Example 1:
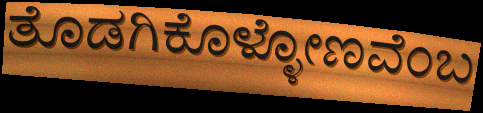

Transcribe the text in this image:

ತೊಡಗಿಕೊಳ್ಳೋಣವೆಂಬ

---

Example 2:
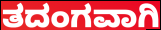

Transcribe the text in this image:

ತದಂಗವಾಗಿ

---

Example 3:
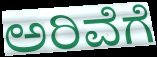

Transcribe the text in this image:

ಅರಿವೆಗೆ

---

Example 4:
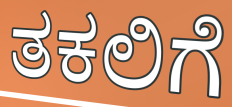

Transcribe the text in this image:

ತಕಲಿಗೆ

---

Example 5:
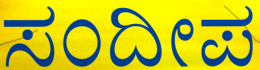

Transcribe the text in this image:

ಸಂದೀಪ